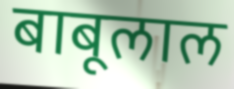
बाबूलाल